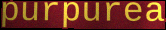
purpurea